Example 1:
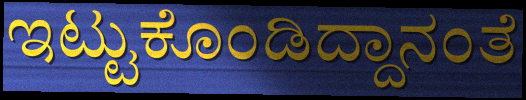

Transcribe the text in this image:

ಇಟ್ಟುಕೊಂಡಿದ್ದಾನಂತೆ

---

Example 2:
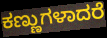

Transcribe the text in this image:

ಕಣ್ಣುಗಳಾದರೆ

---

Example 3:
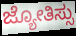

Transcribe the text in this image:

ಜ್ಯೋತಿಸ್ಸು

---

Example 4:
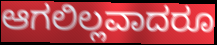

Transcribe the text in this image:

ಆಗಲಿಲ್ಲವಾದರೂ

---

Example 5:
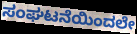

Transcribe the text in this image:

ಸಂಘಟನೆಯಿಂದಲೇ